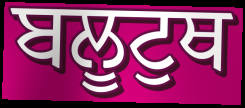
ਬਲੂਟੁਥ